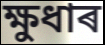
ক্ষুধাৰ